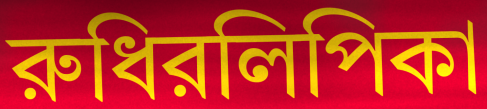
রুধিরলিপিকা